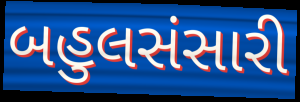
બહુલસંસારી